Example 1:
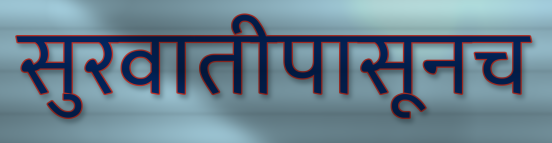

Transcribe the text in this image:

सुरवातीपासूनच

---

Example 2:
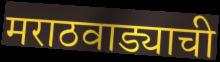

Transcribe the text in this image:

मराठवाड्याची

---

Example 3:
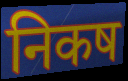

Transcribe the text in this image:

निकष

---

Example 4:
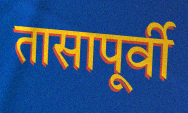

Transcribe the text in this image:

तासापूर्वी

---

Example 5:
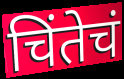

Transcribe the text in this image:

चिंतेचं